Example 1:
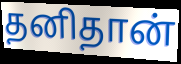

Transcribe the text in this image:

தனிதான்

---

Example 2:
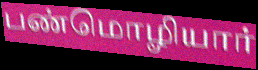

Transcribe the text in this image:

பண்மொழியார்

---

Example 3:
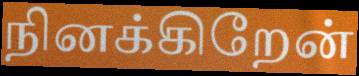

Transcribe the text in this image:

நினக்கிறேன்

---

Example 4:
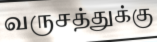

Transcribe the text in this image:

வருசத்துக்கு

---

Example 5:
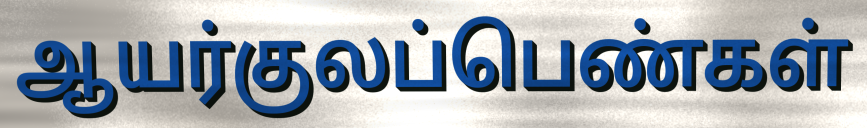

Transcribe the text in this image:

ஆயர்குலப்பெண்கள்